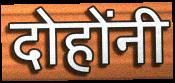
दोहोंनी